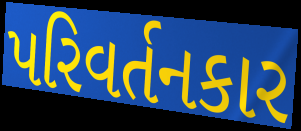
પરિવર્તનકાર